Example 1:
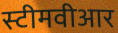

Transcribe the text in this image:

स्टीमवीआर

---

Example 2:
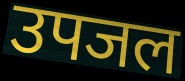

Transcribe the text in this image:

उपजल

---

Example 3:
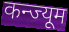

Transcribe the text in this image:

कन्ज्यूम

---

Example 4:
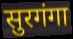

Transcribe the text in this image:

सुरगंगा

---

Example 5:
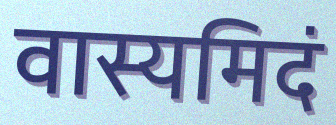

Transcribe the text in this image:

वास्यमिदं